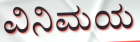
ವಿನಿಮಯ